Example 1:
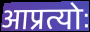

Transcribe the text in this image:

आप्रत्योः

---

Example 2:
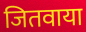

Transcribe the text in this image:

जितवाया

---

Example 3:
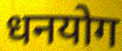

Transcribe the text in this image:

धनयोग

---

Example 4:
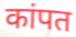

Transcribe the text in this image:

कांपत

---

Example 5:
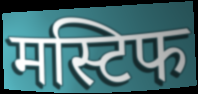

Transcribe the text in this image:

मस्टिफ